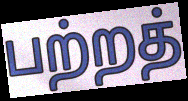
பற்றத்